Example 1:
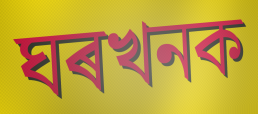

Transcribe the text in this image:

ঘৰখনক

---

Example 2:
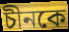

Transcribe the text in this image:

চীনকে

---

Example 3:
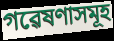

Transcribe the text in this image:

গৱেষণাসমূহ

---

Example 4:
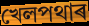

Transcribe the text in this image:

খেলপথাৰ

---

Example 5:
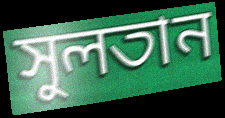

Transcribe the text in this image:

সুলতান